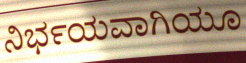
ನಿರ್ಭಯವಾಗಿಯೂ